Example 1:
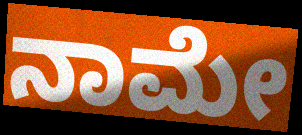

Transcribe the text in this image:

ನಾಮೇ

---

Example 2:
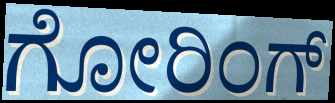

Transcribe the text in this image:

ಗೋರಿಂಗ್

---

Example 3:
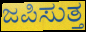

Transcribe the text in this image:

ಜಪಿಸುತ್ತ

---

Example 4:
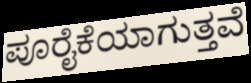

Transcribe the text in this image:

ಪೂರೈಕೆಯಾಗುತ್ತವೆ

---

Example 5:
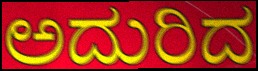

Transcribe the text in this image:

ಅದುರಿದ